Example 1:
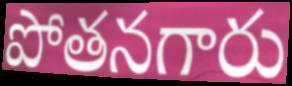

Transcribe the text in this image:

పోతనగారు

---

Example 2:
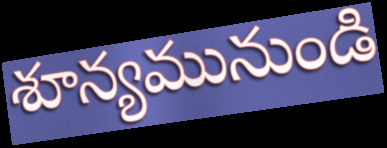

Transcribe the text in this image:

శూన్యమునుండి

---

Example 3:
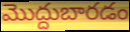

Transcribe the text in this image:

మొద్దుబారడం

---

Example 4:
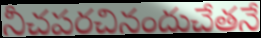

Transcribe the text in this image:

నీచపరచినందుచేతనే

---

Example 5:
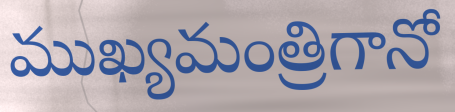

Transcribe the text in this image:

ముఖ్యమంత్రిగానో